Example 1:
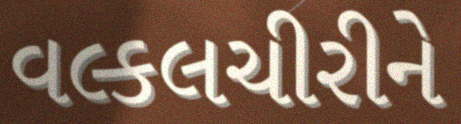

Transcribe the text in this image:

વલ્કલચીરીને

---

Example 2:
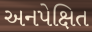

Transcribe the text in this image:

અનપેક્ષિત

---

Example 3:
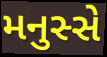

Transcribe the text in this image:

મનુસ્સે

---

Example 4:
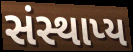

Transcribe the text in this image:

સંસ્થાપ્ય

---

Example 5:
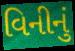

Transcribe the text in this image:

વિનીનું